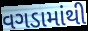
વગડામાંથી